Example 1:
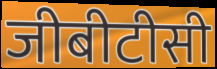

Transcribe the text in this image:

जीबीटीसी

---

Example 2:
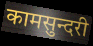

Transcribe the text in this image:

कामसुन्दरी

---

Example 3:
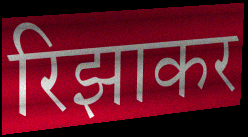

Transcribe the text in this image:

रिझाकर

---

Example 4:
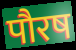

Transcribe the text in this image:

पौरष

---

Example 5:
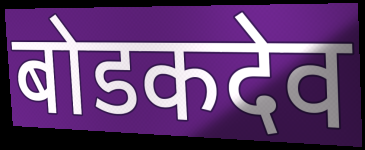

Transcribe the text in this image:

बोडकदेव